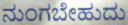
ನುಂಗಬೇಹುದು